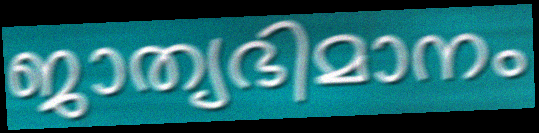
ജാത്യഭിമാനം